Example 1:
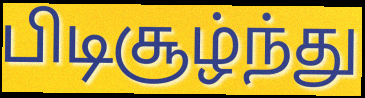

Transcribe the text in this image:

பிடிசூழ்ந்து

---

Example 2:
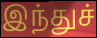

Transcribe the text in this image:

இந்துச்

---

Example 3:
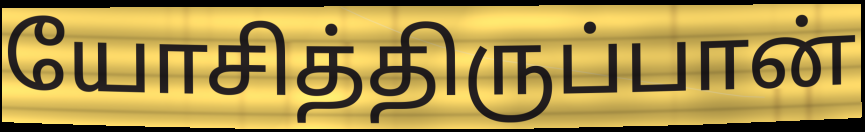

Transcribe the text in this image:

யோசித்திருப்பான்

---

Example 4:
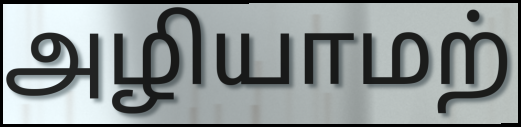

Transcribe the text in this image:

அழியாமற்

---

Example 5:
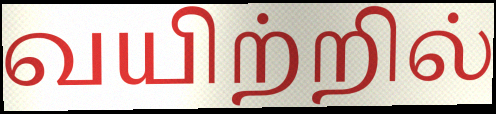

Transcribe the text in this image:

வயிற்றில்